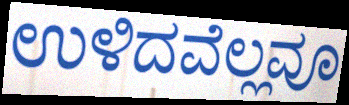
ಉಳಿದವೆಲ್ಲವೂ